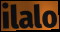
ilalo